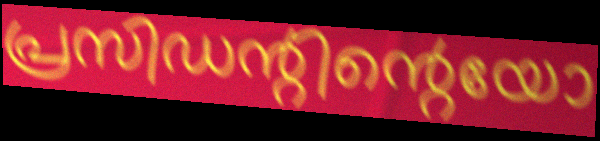
പ്രസിഡന്റിന്റെയോ